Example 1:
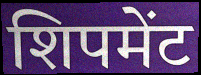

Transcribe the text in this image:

शिपमेंट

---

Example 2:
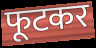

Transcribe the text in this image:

फूटकर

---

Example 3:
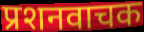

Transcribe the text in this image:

प्रशनवाचक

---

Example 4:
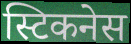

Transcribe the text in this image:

स्टिकनेस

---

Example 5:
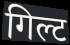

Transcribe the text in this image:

गिल्ट